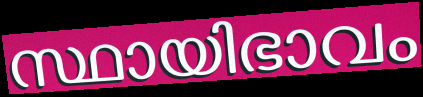
സ്ഥായിഭാവം